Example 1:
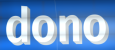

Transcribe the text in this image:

dono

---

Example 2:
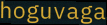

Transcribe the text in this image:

hoguvaga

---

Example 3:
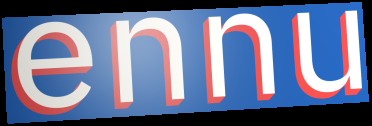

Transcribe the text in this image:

ennu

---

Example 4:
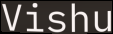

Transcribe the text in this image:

Vishu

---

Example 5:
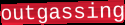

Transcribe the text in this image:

outgassing